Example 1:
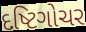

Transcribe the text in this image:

દષ્ટિગોચર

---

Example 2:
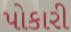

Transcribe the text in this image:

પોકારી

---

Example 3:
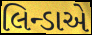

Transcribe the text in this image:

લિન્ડાએ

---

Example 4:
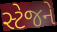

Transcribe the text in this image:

સ્ટેજને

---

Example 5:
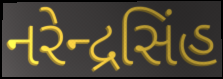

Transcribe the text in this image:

નરેન્દ્રસિંહ